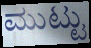
ಮುಟ್ಟು